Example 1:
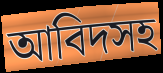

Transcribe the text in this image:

আবিদসহ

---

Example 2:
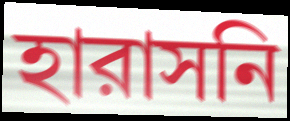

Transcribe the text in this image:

হারাসনি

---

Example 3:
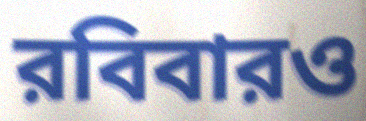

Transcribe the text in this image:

রবিবারও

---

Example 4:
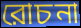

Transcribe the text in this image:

রোচনা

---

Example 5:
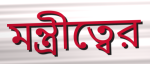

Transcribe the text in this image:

মন্ত্রীত্বের